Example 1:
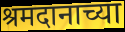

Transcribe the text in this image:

श्रमदानाच्या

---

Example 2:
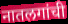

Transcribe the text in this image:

नातलगांची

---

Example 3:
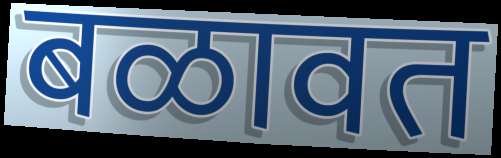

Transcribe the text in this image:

बळावत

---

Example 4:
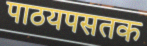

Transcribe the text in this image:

पाठयपसतक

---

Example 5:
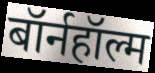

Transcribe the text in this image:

बॉर्नहॉल्म